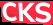
CKS